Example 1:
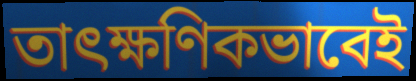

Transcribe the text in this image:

তাৎক্ষণিকভাবেই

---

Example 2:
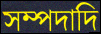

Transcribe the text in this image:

সম্পদাদি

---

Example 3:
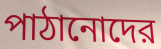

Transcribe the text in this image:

পাঠানোদের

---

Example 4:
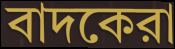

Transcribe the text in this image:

বাদকেরা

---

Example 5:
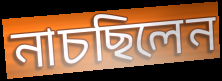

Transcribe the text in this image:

নাচছিলেন